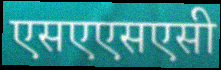
एसएएसएसी